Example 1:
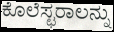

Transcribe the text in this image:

ಕೊಲೆಸ್ಟರಾಲನ್ನು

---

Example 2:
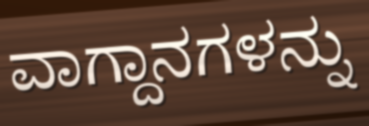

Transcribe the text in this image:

ವಾಗ್ದಾನಗಳನ್ನು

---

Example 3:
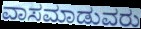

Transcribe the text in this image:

ವಾಸಮಾಡುವರು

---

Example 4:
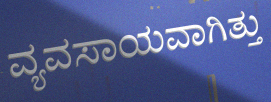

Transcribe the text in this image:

ವ್ಯವಸಾಯವಾಗಿತ್ತು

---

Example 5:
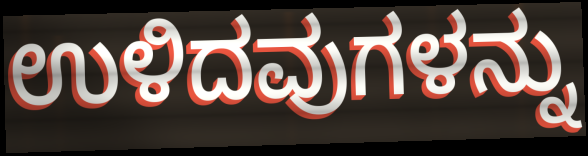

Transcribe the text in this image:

ಉಳಿದವುಗಳನ್ನು